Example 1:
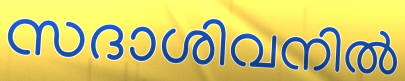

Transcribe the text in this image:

സദാശിവനിൽ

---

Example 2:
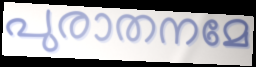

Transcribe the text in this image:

പുരാതനമേ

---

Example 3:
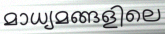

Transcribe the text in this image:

മാധ്യമങ്ങളിലെ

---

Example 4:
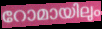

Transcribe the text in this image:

റോമായിലും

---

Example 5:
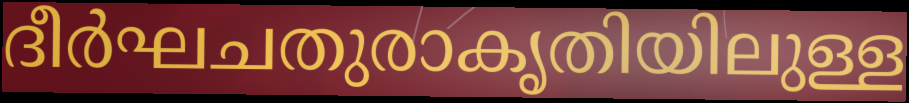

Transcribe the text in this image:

ദീർഘചതുരാകൃതിയിലുള്ള